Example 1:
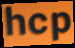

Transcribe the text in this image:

hcp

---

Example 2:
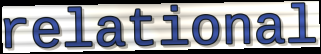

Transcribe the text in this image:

relational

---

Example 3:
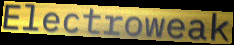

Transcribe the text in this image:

Electroweak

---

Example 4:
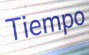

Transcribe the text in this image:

Tiempo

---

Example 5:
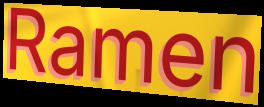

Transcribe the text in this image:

Ramen